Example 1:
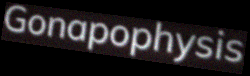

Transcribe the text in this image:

Gonapophysis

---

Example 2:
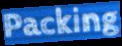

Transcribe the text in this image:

Packing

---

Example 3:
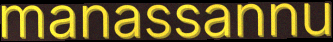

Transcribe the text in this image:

manassannu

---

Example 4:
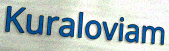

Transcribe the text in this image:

Kuraloviam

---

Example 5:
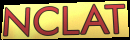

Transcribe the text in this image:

NCLAT